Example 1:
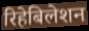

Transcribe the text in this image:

रिहेबिलेशन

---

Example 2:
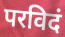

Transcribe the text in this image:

परविदं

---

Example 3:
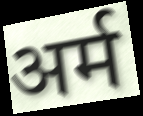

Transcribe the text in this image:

अर्म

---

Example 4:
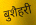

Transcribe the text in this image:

बुशैहरी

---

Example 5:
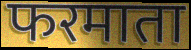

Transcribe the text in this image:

फरमाता